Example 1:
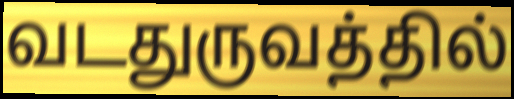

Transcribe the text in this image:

வடதுருவத்தில்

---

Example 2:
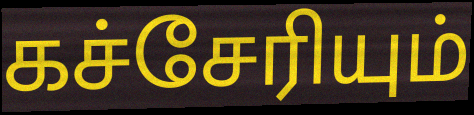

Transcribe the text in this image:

கச்சேரியும்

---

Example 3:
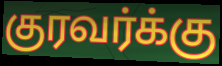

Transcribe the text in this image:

குரவர்க்கு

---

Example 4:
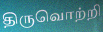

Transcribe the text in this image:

திருவொற்றி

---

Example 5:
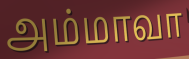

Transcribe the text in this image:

அம்மாவா